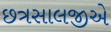
છત્રસાલજીએ